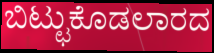
ಬಿಟ್ಟುಕೊಡಲಾರದ